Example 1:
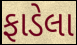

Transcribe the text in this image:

ફાડેલા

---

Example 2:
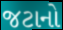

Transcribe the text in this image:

જટાનો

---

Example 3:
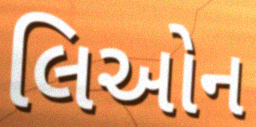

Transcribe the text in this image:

લિઓન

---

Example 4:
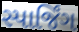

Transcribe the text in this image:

સ્પાર્જિંગ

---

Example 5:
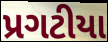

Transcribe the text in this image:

પ્રગટીયા